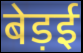
बेड़ई